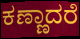
ಕಣ್ಣಾದರೆ